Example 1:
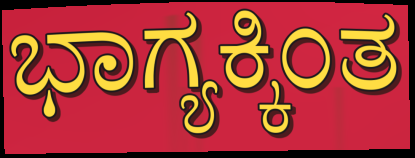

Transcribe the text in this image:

ಭಾಗ್ಯಕ್ಕಿಂತ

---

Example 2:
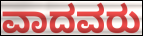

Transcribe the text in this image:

ವಾದವರು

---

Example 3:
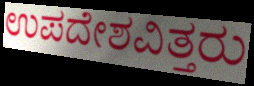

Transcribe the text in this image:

ಉಪದೇಶವಿತ್ತರು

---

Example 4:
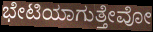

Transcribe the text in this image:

ಭೇಟಿಯಾಗುತ್ತೇವೋ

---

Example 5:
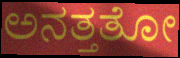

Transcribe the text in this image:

ಅನತ್ತತೋ